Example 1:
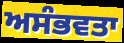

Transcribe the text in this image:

ਅਸੰਭਵਤਾ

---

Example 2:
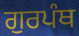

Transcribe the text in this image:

ਗੁਰਪੰਥ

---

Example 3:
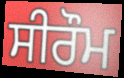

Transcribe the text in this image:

ਸੀਰੌਮ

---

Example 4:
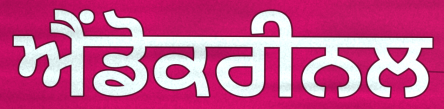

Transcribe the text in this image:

ਐਂਡੋਕਰੀਨਲ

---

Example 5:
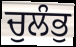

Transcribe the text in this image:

ਚੁਲੰਭੁ